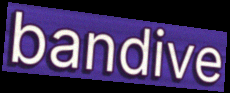
bandive